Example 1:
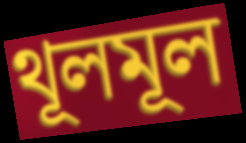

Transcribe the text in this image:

থূলমূল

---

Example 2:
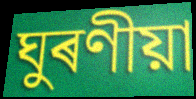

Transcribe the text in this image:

ঘুৰণীয়া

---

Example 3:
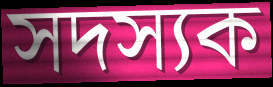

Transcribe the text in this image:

সদস্যক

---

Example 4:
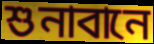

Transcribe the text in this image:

শুনাবানে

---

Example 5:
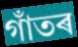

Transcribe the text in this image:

গাঁতৰ